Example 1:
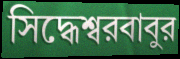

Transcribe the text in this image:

সিদ্ধেশ্বরবাবুর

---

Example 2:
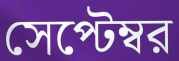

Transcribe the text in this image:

সেপ্টেম্বর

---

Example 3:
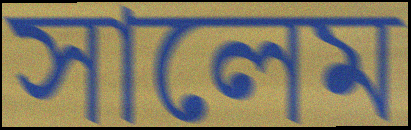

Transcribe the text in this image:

সালেম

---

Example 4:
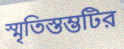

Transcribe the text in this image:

স্মৃতিস্তম্ভটির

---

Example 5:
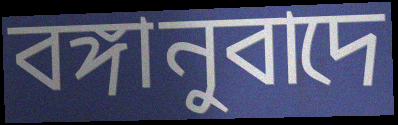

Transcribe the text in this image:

বঙ্গানুবাদে